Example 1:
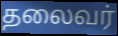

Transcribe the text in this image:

தலைவர்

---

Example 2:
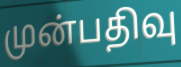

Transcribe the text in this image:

முன்பதிவு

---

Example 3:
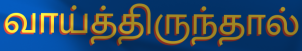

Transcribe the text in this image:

வாய்த்திருந்தால்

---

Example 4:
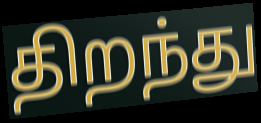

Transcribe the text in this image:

திறந்து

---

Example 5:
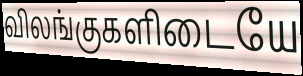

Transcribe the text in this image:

விலங்குகளிடையே